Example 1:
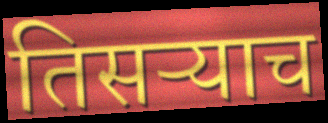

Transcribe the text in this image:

तिसऱ्याच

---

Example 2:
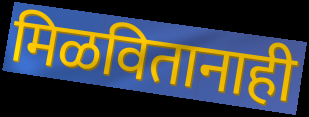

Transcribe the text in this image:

मिळवितानाही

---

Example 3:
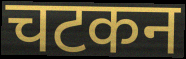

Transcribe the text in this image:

चटकन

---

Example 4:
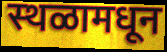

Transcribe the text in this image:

स्थळामधून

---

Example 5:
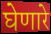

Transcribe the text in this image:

घेणारे